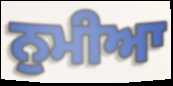
ਨੁਮੀਆ